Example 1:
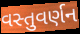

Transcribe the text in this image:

વસ્તુવર્ણન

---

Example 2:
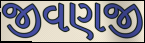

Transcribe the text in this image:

જીવણજી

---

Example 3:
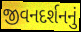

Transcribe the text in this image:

જીવનદર્શનનું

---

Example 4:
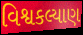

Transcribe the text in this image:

વિશ્વકલ્યાણ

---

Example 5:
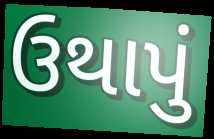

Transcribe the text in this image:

ઉથાપું